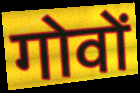
गोवों